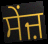
ਸੇਂਜ਼